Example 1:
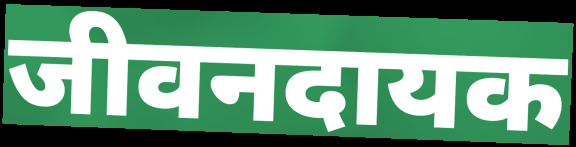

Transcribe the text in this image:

जीवनदायक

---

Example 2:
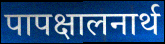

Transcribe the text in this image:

पापक्षालनार्थ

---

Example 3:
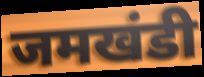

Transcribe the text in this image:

जमखंडी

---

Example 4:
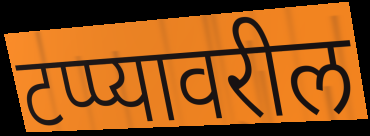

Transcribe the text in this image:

टप्प्यावरील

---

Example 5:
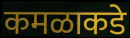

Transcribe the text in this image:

कमळाकडे